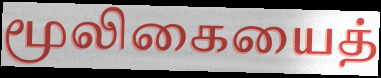
மூலிகையைத்